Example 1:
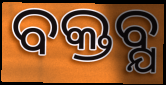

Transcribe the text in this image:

ବକ୍ତବ୍ଯ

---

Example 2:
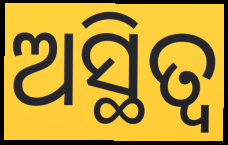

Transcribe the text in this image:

ଅସ୍ଥିତ୍ୱ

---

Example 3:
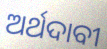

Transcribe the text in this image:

ଅର୍ଥଦାବୀ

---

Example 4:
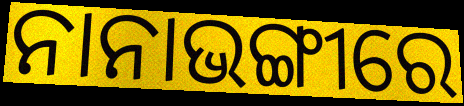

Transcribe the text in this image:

ନାନାଭଙ୍ଗୀରେ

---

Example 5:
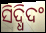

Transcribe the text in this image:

ସିଦ୍ଧିଦଂ